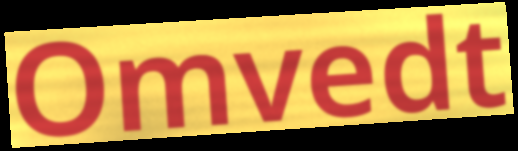
Omvedt